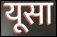
यूसा